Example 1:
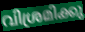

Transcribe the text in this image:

വിശ്രമിക്കു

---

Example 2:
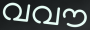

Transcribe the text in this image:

വവൗ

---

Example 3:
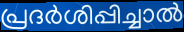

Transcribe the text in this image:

പ്രദർശിപ്പിച്ചാൽ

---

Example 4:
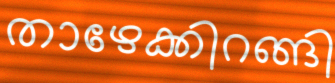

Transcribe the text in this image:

താഴേക്കിറങ്ങി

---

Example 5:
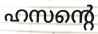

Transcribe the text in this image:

ഹസന്റെ